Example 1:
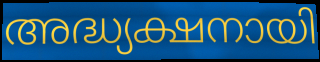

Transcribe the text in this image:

അദ്ധ്യക്ഷനായി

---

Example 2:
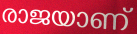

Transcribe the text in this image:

രാജയാണ്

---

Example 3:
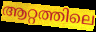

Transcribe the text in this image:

ആറ്റത്തിലെ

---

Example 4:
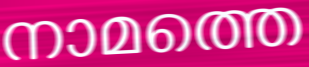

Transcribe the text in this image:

നാമത്തെ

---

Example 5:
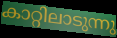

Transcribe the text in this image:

കാറ്റിലാടുന്നു